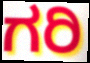
ಗರಿ